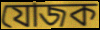
যোজক